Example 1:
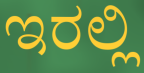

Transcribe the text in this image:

ಇರಲ್ಲಿ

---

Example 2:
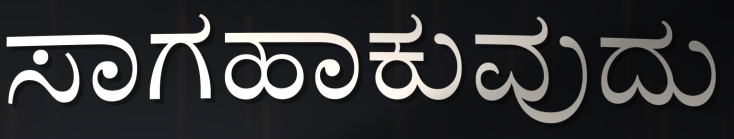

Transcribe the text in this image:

ಸಾಗಹಾಕುವುದು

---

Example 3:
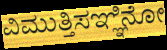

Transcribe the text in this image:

ವಿಮುತ್ತಿಸಞ್ಞಿನೋ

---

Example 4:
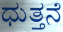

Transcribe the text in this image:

ಧುತ್ತನೆ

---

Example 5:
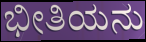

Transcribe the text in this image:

ಭೀತಿಯನು